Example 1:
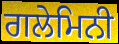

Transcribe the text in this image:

ਗਲੇਮਿਨੀ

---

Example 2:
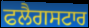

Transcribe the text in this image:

ਫਲੈਗਸਟਾਰ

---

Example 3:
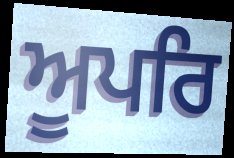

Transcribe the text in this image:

ਅੂਪਰਿ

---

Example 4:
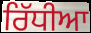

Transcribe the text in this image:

ਰਿੱਧੀਆ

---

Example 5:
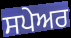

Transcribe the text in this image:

ਸਪੇਅਰ